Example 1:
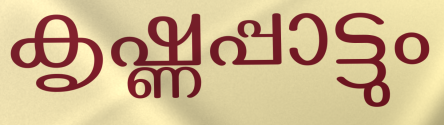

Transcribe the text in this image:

കൃഷ്ണപ്പാട്ടും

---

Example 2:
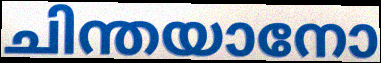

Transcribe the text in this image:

ചിന്തയാനോ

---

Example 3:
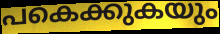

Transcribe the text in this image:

പകെക്കുകയും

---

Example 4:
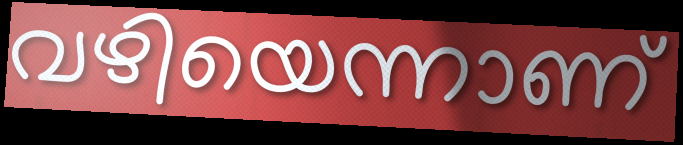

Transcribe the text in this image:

വഴിയെന്നാണ്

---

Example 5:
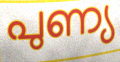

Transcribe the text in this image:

പുണ്യ